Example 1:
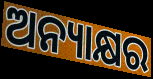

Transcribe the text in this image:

ଅନ୍ୟାକ୍ଷର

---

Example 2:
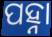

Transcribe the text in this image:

ପହ୍ନା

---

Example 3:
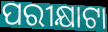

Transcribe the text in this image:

ପରୀକ୍ଷାଟା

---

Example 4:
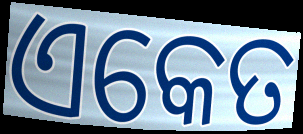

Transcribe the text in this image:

ଏକେତ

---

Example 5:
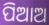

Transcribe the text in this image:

ପିଆଅ